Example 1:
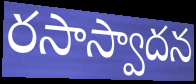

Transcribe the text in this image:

రసాస్వాదన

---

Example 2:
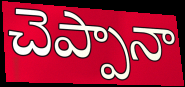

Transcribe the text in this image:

చెప్పానా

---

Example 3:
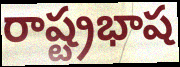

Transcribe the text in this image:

రాష్ట్రభాష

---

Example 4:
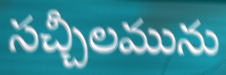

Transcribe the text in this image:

సచ్చీలమును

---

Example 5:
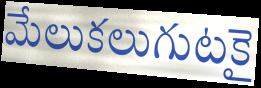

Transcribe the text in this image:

మేలుకలుగుటకై